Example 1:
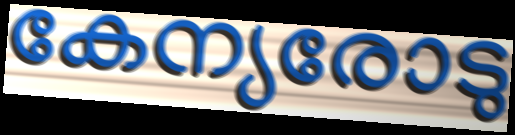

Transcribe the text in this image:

കേന്യരോടു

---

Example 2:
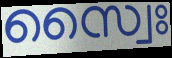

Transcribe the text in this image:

സ്വൈഃ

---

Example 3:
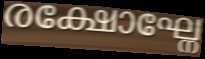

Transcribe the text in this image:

രക്ഷോഘ്നേ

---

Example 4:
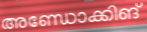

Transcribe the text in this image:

അണ്ഡോക്കിങ്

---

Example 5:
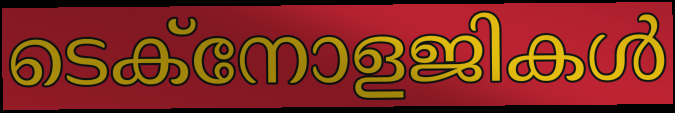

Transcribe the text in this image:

ടെക്നോളജികൾ